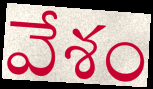
వేశం